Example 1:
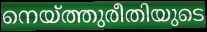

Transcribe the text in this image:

നെയ്ത്തുരീതിയുടെ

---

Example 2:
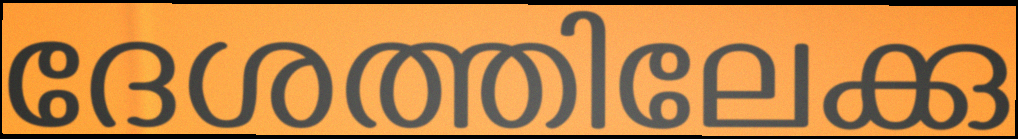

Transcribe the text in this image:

ദേശത്തിലേക്കു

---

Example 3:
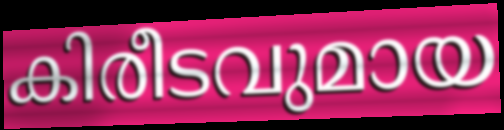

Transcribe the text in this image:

കിരീടവുമായ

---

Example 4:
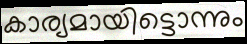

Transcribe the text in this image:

കാര്യമായിട്ടൊന്നും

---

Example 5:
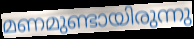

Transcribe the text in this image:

മണമുണ്ടായിരുന്നു